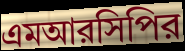
এমআরসিপির